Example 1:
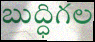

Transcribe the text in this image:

బుద్ధిగల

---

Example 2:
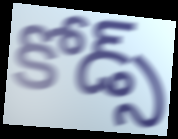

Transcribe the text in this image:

కోడ్స్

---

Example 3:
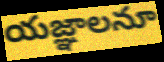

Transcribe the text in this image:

యజ్ఞాలనూ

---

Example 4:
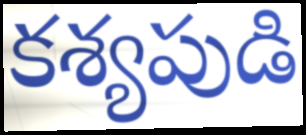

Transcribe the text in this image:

కశ్యపుడి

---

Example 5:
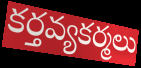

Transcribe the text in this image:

కర్తవ్యకర్మలు